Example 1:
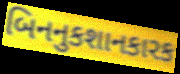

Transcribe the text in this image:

બિનનુકશાનકારક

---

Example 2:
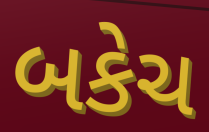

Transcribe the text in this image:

બકેચ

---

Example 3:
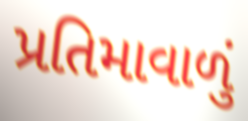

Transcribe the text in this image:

પ્રતિમાવાળું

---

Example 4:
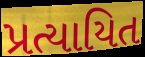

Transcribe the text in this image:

પ્રત્યાયિત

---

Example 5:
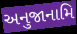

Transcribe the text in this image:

અનુજાનામિ